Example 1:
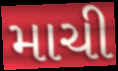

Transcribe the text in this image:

માચી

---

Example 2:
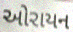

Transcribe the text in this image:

ઓરાયન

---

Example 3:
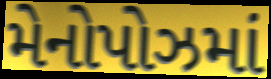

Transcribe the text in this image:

મેનોપોઝમાં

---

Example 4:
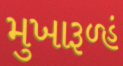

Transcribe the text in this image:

મુખારૂળ્હં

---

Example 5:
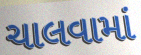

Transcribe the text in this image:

ચાલવામાં